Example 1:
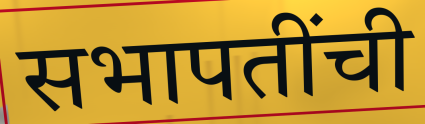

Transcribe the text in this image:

सभापतींची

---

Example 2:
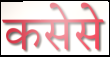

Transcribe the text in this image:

कसेसे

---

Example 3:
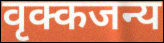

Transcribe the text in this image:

वृक्कजन्य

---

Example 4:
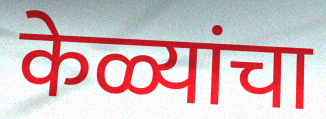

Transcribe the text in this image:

केळ्यांचा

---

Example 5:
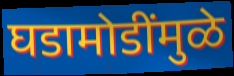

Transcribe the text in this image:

घडामोडींमुळे